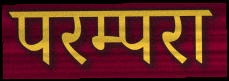
परम्परा